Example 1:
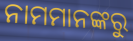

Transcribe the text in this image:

ନାମମାନଙ୍କରୁ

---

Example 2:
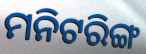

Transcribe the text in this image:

ମନିଟରିଙ୍ଗ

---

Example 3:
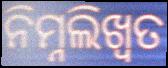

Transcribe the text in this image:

ନିମ୍ନଲିଖ୍ବତ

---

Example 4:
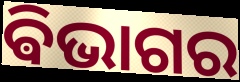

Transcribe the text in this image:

ଵିଭାଗର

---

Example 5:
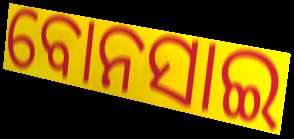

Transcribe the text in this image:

ବୋନସାଇ